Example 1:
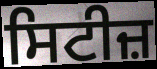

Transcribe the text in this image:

ਸਿਟੀਜ਼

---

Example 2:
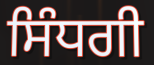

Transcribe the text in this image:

ਸਿੰਧਗੀ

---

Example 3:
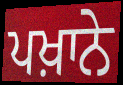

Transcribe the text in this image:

ਪਖ਼ਾਨੇ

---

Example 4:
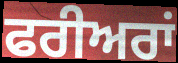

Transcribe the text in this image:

ਫਰੀਅਰਾਂ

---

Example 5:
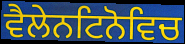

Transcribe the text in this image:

ਵੈਲੇਨਟਿਨੋਵਿਚ